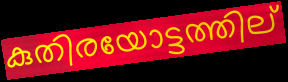
കുതിരയോട്ടത്തില്